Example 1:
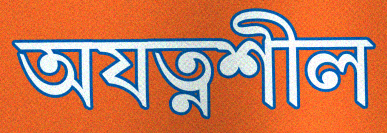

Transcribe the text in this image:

অযত্নশীল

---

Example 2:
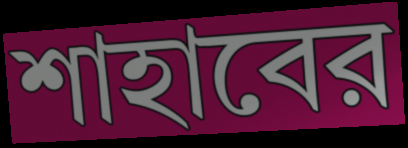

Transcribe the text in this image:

শাহাবের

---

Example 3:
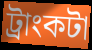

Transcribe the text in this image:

ট্রাংকটা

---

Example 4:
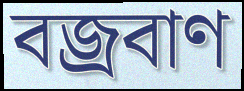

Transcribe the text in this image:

বজ্রবাণ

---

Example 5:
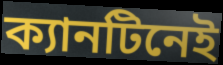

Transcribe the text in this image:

ক্যানটিনেই